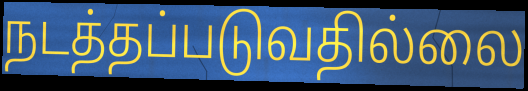
நடத்தப்படுவதில்லை